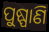
ପୁଷ୍ପାଣି